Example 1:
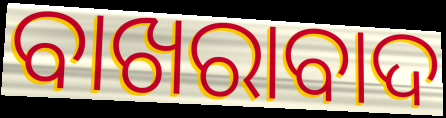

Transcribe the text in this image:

ବାଖରାବାଦ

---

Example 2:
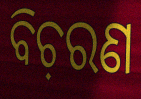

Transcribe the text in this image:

ବିଚ଼ରଣ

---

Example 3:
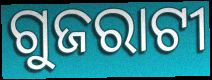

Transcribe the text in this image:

ଗୁଜରାଟୀ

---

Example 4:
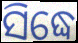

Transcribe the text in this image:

ସିଦ୍ଧେ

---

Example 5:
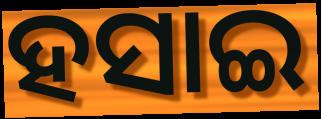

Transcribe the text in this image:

ହସାଇ